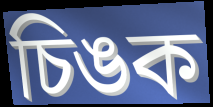
চিঙক